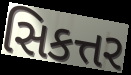
સિકત્તર